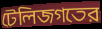
টেলিজগতের